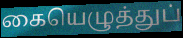
கையெழுத்துப்